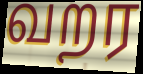
வறர